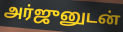
அர்ஜுனுடன்